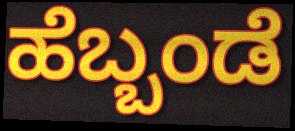
ಹೆಬ್ಬಂಡೆ